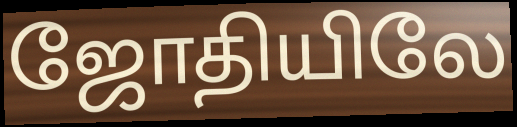
ஜோதியிலே